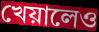
খেয়ালেও